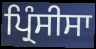
ਪ੍ਰਿੰਸੀਸਾ